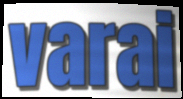
varai